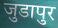
जुडापुर